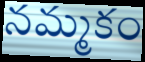
నమ్మకం